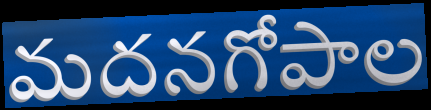
మదనగోపాల